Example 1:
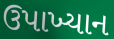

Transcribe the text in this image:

ઉપાખ્યાન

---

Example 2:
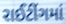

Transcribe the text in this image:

રાઈટીંગમાં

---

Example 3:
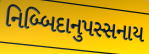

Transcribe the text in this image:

નિબ્બિદાનુપસ્સનાય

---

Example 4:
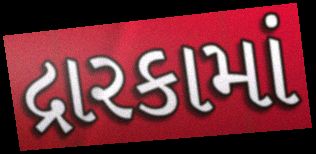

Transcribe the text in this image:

દ્રારકામાં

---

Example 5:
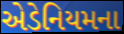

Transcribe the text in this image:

એડેનિયમના